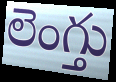
లెంగ్తు